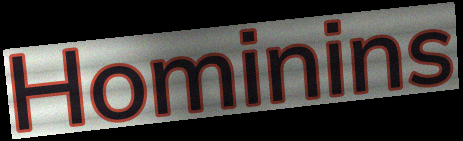
Hominins